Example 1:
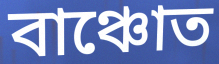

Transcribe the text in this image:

বাঞ্চোত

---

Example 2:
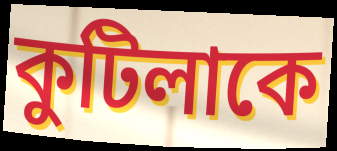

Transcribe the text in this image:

কুটিলাকে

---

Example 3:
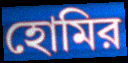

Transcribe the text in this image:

হোমির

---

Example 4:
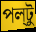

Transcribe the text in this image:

পল্‌টু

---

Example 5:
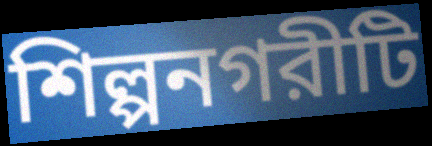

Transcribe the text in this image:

শিল্পনগরীটি